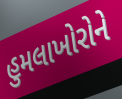
હુમલાખોરોને